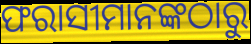
ଫରାସୀମାନଙ୍କଠାରୁ